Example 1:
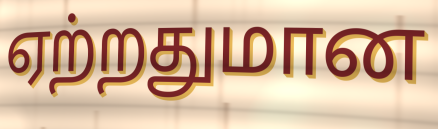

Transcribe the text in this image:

ஏற்றதுமான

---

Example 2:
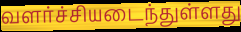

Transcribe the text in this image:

வளர்ச்சியடைந்துள்ளது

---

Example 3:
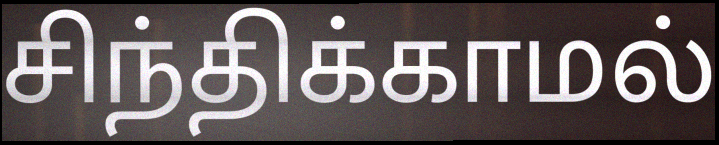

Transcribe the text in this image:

சிந்திக்காமல்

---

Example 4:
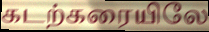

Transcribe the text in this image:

கடற்கரையிலே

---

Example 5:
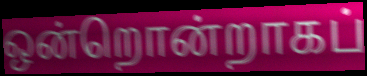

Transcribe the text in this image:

ஒன்றொன்றாகப்